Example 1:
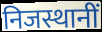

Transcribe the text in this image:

निजस्थानीं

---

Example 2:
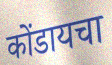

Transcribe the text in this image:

कोंडायचा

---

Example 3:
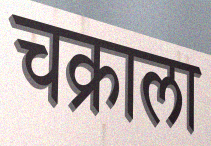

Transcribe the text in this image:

चक्राला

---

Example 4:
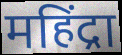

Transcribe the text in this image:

महिंद्रा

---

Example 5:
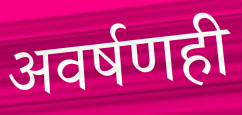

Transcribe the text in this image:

अवर्षणही